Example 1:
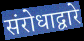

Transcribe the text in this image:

संरोधाद्वारे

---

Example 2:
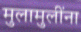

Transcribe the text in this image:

मुलामुलींना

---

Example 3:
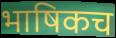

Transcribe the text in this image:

भाषिकच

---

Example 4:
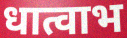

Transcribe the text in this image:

धात्वाभ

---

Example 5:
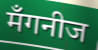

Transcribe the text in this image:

मँगनीज